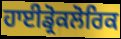
ਹਾਈਡ੍ਰੋਕਲੋਰਿਕ